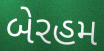
બેરહમ